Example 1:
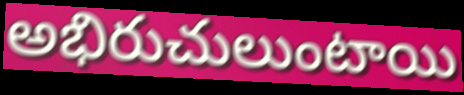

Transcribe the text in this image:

అభిరుచులుంటాయి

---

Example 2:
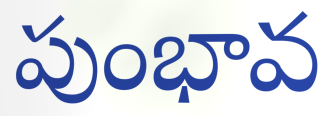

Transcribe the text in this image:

పుంభావ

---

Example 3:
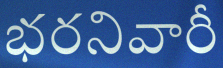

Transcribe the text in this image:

భరనివారీ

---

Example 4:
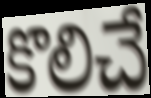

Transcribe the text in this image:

కొలిచే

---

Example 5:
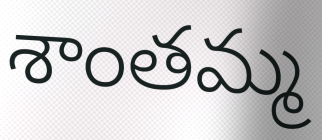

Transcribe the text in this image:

శాంతమ్మ